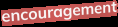
encouragement